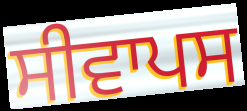
ਸੀਵਾਪਸ